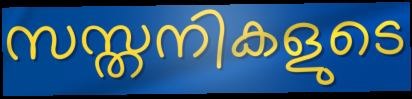
സസ്തനികളുടെ